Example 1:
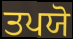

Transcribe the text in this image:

ਤਪਯੋ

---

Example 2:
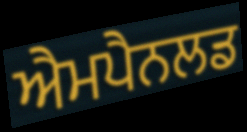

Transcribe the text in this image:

ਐਮਪੈਨਲਡ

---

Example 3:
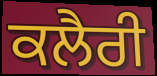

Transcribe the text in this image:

ਕਲੈਰੀ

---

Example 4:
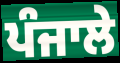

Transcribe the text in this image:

ਪੰਜਾਲੇ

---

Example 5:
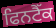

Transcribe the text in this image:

ਫਿਨਟੈੱਕ